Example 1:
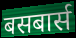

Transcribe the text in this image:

बसबार्स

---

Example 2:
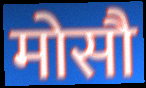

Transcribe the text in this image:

मोसौ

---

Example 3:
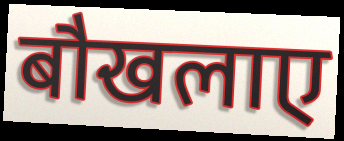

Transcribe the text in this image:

बौखलाए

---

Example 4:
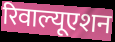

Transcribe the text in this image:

रिवाल्यूएशन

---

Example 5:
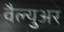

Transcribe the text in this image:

वैल्युअर